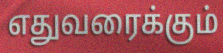
எதுவரைக்கும்